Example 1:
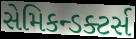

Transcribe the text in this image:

સેમિકન્ડક્ટર્સ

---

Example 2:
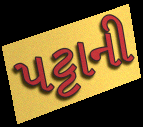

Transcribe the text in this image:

પટ્ટાની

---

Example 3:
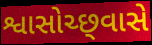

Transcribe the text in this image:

શ્વાસોચ્છ્‍વાસે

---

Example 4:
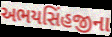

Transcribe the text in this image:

અભયસિંહજીના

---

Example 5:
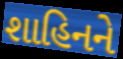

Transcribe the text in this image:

શાહિનને